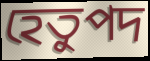
হেতুপদ